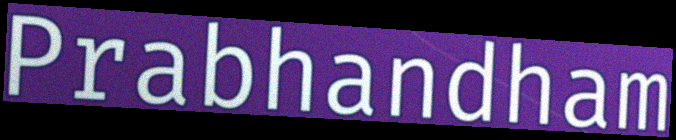
Prabhandham